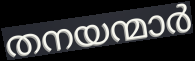
തനയന്മാർ